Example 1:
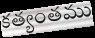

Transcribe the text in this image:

కత్యంతము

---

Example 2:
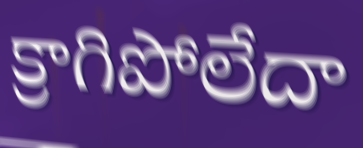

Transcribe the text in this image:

క్రాగిపోలేదా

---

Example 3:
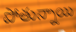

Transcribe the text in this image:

పోతున్నాయి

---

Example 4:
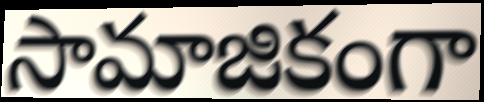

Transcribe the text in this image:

సామాజికంగా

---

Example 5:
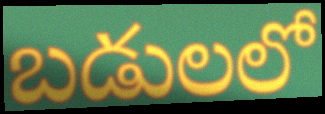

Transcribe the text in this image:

బడులలో